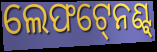
ଲେଫଟ୍‍ନେଣ୍ଟ୍